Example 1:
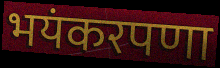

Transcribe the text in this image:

भयंकरपणा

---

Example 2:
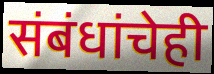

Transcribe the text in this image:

संबंधांचेही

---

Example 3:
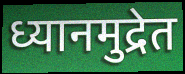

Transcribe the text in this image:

ध्यानमुद्रेत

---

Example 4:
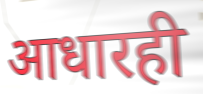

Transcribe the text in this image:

आधारही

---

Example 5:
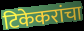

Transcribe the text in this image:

टिकेकरांचा